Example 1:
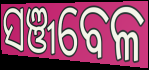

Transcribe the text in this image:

ସଞ୍ଜବେଳ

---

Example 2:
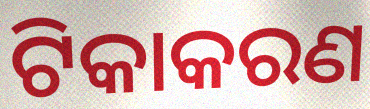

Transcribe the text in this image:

ଟିକାକରଣ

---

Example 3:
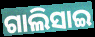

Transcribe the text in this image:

ଗାଲିସାଇ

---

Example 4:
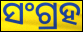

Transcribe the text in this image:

ସଂଗ୍ରହ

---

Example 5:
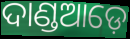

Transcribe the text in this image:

ଦାଣ୍ଡଆଡ଼େ